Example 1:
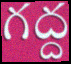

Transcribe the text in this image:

గద్ద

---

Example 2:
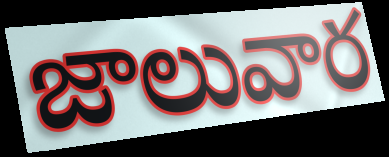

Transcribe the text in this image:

జాలువార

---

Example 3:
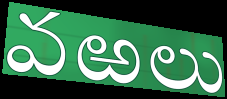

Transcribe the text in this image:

వఱలు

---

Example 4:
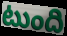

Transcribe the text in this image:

టుంది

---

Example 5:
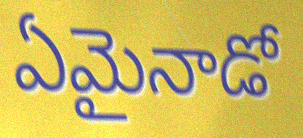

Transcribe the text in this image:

ఏమైనాడో